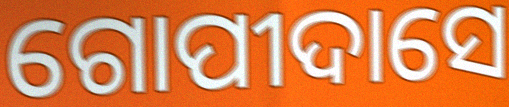
ଗୋପୀଦାସେ